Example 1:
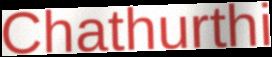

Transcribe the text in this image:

Chathurthi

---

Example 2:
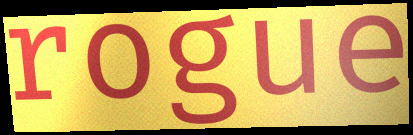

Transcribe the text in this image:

rogue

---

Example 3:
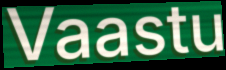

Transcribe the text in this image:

Vaastu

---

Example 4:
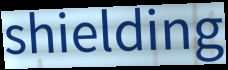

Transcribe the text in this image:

shielding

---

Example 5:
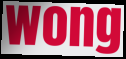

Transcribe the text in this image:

wong